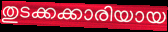
തുടക്കക്കാരിയായ